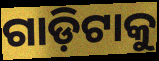
ଗାଡ଼ିଟାକୁ